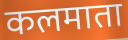
कलमाता